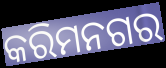
କରିମନଗର